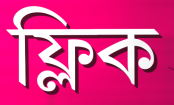
ফ্লিক